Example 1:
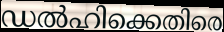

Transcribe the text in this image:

ഡൽഹിക്കെതിരെ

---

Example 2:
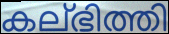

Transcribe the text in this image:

കല്ഭിത്തി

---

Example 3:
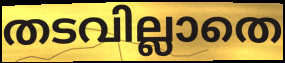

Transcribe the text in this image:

തടവില്ലാതെ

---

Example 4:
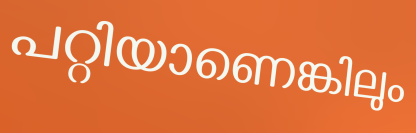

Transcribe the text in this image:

പറ്റിയാണെങ്കിലും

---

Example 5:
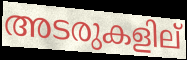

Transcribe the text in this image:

അടരുകളില്